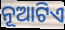
ନୂଆଟିଏ